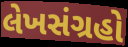
લેખસંગ્રહો